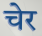
चेर